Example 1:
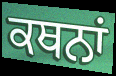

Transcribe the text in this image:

ਕਥਨਾਂ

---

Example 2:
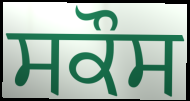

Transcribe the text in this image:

ਸਕੌਸ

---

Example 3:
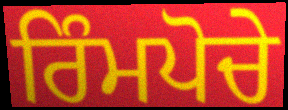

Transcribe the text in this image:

ਰਿੰਮਪੋਚੇ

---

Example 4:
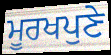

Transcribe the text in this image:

ਮੂਰਖਪੁਣੇ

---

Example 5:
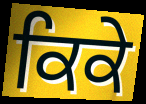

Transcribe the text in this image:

ਕਿਕੇ